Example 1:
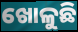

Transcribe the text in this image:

ଖୋଳୁଛି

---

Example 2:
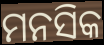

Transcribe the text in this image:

ମନସିକ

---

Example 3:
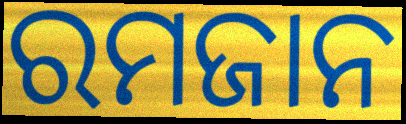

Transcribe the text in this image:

ରମଜାନ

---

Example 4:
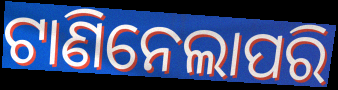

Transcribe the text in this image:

ଟାଣିନେଲାପରି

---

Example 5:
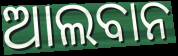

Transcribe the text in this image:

ଆଲବାନ